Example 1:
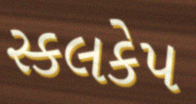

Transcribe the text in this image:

સ્કલકેપ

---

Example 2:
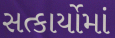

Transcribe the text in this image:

સત્કાર્યોમાં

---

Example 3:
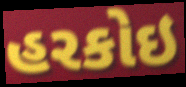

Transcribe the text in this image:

હરકોઇ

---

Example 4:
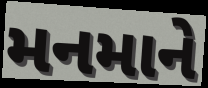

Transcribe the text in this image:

મનમાને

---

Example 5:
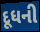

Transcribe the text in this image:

દૂધની